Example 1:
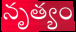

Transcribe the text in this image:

నృత్యం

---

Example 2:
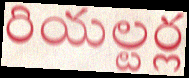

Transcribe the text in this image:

రియల్టర్ల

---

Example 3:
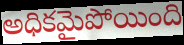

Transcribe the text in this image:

అధికమైపోయింది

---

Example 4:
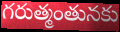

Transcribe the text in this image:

గరుత్మంతునకు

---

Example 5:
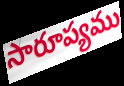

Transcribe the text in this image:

సారూప్యము